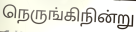
நெருங்கிநின்று